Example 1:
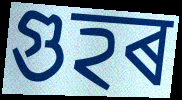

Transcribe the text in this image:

গুহৰ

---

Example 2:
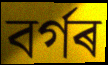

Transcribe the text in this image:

বৰ্গৰ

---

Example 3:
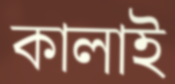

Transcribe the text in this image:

কালাই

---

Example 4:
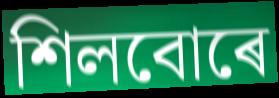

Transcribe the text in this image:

শিলবোৰে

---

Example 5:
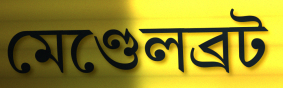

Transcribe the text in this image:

মেণ্ডেলব্ৰট